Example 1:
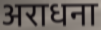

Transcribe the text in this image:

अराधना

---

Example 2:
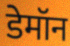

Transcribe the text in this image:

डेमॉन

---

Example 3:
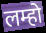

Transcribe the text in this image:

लम्हो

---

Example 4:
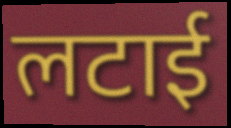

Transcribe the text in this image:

लटाई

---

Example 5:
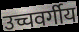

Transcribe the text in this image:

उच्चवर्गीय